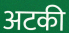
अटकी